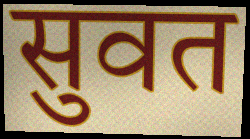
सुवत